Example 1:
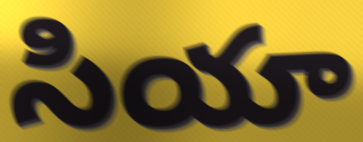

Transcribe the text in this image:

సియా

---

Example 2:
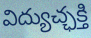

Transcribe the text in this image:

విద్యుచ్ఛక్తి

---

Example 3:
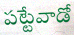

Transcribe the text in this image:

పట్టేవాడో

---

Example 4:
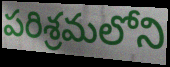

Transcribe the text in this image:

పరిశ్రమలోని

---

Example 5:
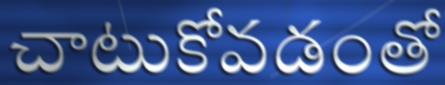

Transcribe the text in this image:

చాటుకోవడంతో